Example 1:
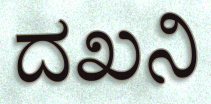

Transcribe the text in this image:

ದಖನಿ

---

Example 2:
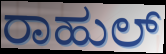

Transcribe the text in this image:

ರಾಹುಲ್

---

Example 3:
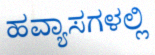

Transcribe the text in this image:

ಹವ್ಯಾಸಗಳಲ್ಲಿ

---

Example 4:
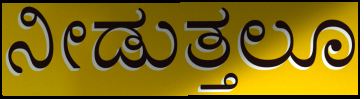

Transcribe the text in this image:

ನೀಡುತ್ತಲೂ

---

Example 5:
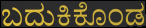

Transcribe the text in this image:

ಬದುಕಿಕೊಂಡ